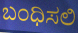
ಬಂಧಿಸಲಿ